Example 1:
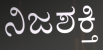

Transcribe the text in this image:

ನಿಜಶಕ್ತಿ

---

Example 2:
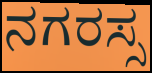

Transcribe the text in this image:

ನಗರಸ್ಸ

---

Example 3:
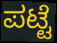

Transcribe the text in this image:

ಪಟ್ಟೆ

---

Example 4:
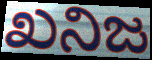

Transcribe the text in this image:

ಖನಿಜ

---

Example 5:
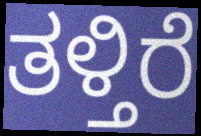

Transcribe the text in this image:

ತಳ್ತಿರೆ